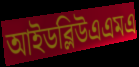
আইডব্লিউএএমএ